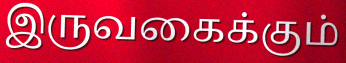
இருவகைக்கும்